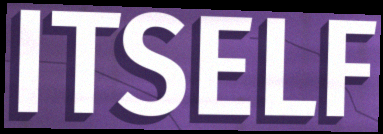
ITSELF